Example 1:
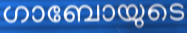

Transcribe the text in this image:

ഗാബോയുടെ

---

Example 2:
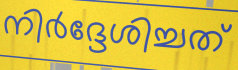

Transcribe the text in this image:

നിർദ്ദേശിച്ചത്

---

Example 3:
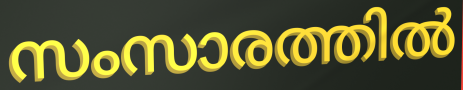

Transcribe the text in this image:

സംസാരത്തിൽ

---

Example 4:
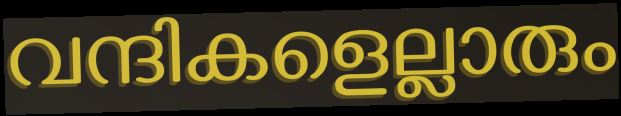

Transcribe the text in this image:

വന്ദികളെല്ലാരും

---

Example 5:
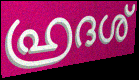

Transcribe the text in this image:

ഹ്രദശ്